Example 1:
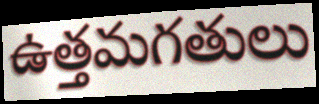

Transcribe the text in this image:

ఉత్తమగతులు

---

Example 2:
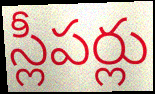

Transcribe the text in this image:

స్లీపర్లు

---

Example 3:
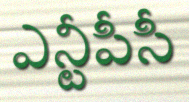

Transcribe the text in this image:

ఎన్టీపీసీ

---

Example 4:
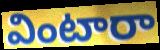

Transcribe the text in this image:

వింటారా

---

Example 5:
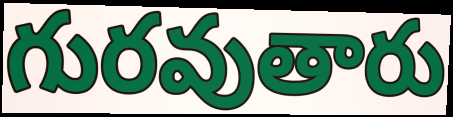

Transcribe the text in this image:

గురవుతారు